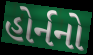
હોર્નનો